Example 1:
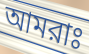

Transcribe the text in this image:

আমরাঃ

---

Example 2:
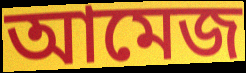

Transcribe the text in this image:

আমেজ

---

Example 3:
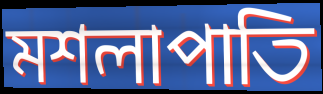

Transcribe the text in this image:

মশলাপাতি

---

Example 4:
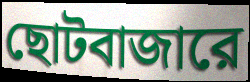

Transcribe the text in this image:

ছোটবাজারে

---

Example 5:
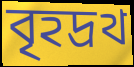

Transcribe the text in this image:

বৃহদ্রথ